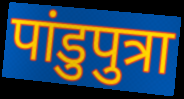
पांडुपुत्रा